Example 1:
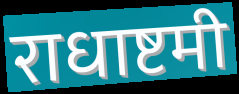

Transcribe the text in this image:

राधाष्टमी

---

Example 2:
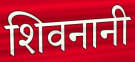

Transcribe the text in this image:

शिवनानी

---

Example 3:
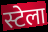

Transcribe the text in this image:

स्टेला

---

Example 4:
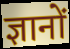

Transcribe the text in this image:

ज्ञानों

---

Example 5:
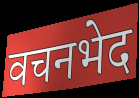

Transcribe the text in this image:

वचनभेद